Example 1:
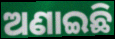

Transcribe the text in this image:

ଅଣାଇଛି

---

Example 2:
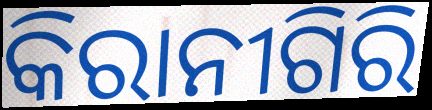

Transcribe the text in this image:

କିରାନୀଗିରି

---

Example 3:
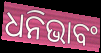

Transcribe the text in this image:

ଧନିଭାବଂ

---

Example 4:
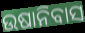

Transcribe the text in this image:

ଉଷାନିବାସ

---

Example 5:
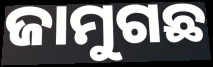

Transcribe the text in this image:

ଜାମୁଗଛ